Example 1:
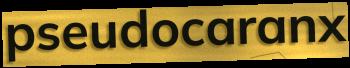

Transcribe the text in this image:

pseudocaranx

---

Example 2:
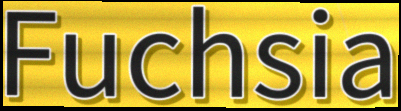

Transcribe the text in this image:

Fuchsia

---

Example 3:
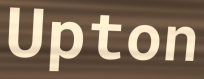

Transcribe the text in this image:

Upton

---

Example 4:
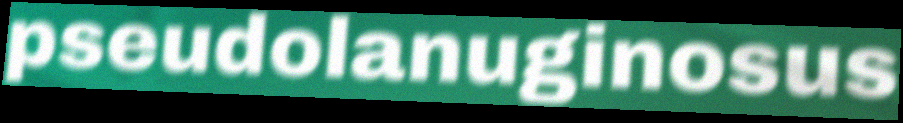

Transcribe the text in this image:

pseudolanuginosus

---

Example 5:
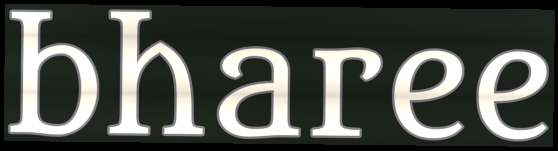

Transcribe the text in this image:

bharee